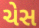
ચેસ